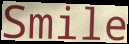
Smile